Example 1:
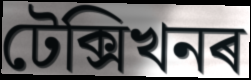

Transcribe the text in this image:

টেক্সিখনৰ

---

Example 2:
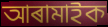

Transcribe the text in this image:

আৰামাইক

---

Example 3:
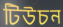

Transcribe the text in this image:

টিউচন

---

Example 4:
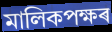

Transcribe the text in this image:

মালিকপক্ষৰ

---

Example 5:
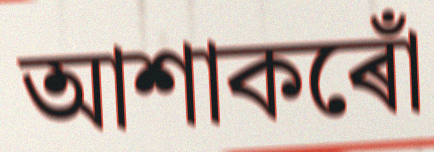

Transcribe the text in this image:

আশাকৰোঁ